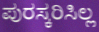
ಪುರಸ್ಕರಿಸಿಲ್ಲ